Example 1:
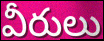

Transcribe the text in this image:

వీరులు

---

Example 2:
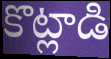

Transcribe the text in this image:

కొట్లాడి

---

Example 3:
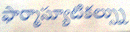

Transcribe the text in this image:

ఫార్మాస్యూటికల్స్ను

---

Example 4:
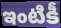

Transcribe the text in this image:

ఇంటికీ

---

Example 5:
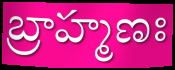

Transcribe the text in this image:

బ్రాహ్మణః